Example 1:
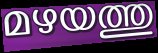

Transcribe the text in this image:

മഴയത്തു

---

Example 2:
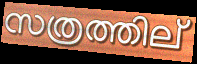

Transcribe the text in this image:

സത്രത്തില്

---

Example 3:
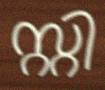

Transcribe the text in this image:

സ്റ്റി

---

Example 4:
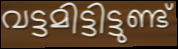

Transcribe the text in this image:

വട്ടമിട്ടിട്ടുണ്ട്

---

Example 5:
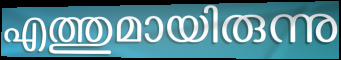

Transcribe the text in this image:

എത്തുമായിരുന്നു